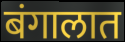
बंगालात